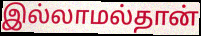
இல்லாமல்தான்